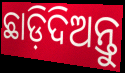
ଛାଡ଼ିଦିଅନ୍ତୁ